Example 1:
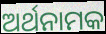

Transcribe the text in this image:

ଅର୍ଥନାମକ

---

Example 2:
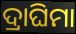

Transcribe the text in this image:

ଦ୍ରାଘିମା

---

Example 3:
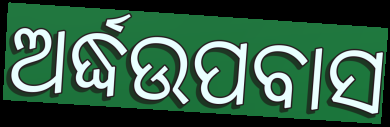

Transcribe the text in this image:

ଅର୍ଦ୍ଧଉପବାସ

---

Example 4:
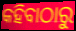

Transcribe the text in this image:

କହିବାଠାରୁ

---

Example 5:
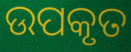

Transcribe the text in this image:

ଉପକୃତ